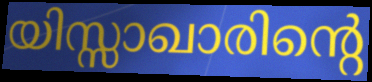
യിസ്സാഖാരിന്റെ